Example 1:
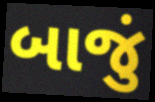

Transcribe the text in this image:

બાજું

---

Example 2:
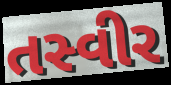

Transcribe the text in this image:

તસ્વીર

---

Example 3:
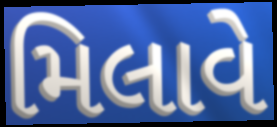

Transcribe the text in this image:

મિલાવે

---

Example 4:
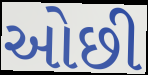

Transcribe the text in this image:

ઓછી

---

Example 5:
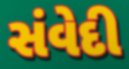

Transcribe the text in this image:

સંવેદી